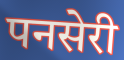
पनसेरी